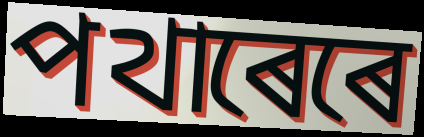
পথাৰেৰে